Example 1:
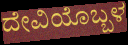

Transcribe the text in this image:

ದೇವಿಯೊಬ್ಬಳ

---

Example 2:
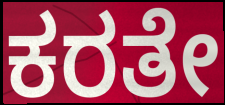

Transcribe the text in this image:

ಕರತೇ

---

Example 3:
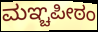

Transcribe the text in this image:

ಮಞ್ಚಪೀಠಂ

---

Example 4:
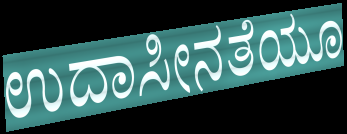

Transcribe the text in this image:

ಉದಾಸೀನತೆಯೂ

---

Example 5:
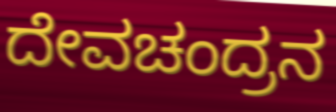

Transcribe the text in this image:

ದೇವಚಂದ್ರನ